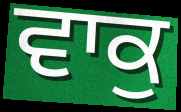
ਵਾਕੁ